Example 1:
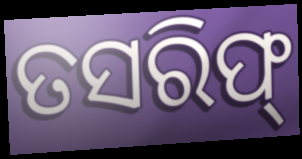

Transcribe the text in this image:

ତସରିଫ୍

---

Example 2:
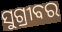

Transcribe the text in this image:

ସୁଗ୍ରୀବର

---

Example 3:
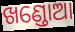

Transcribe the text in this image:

ଖଣ୍ଡୋଆ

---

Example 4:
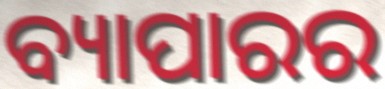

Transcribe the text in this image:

ବ୍ୟାପାରର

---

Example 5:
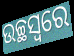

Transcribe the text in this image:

ଉଚ୍ଛସ୍ୱରେ